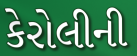
કેરોલીની